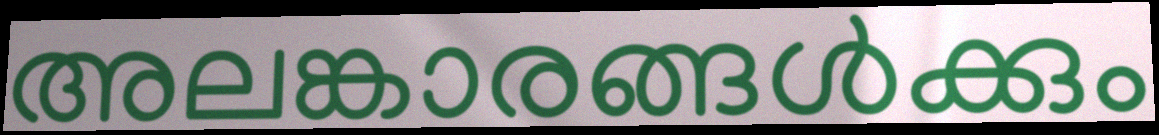
അലങ്കാരങ്ങൾക്കും